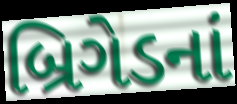
બ્રિગેડનાં